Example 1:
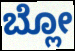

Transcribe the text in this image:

ಬ್ಲೋ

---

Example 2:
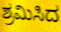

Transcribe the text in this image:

ಶ್ರಮಿಸಿದ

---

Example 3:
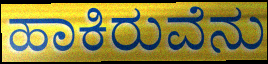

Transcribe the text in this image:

ಹಾಕಿರುವೆನು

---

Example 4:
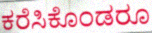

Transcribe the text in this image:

ಕರೆಸಿಕೊಂಡರೂ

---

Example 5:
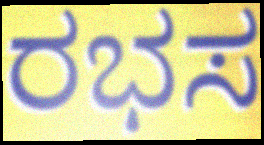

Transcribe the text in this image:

ರಭಸ